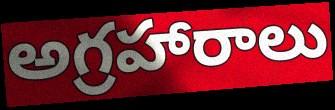
అగ్రహారాలు